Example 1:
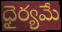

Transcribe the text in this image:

ధైర్యమే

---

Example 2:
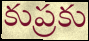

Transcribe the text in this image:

కుప్రకు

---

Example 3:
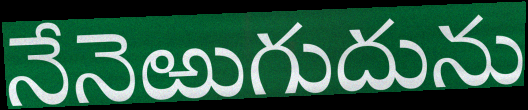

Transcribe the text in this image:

నేనెఱుగుదును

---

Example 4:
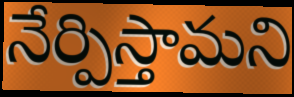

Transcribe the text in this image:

నేర్పిస్తామని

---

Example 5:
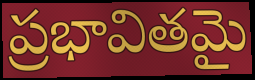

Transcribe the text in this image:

ప్రభావితమై